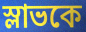
স্লাভকে